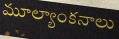
మూల్యాంకనాలు